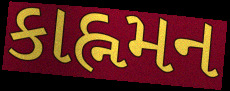
કાહ્નમન